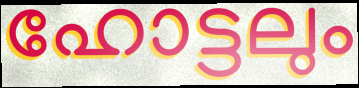
ഹോട്ടലും